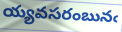
య్యవసరంబునఁ